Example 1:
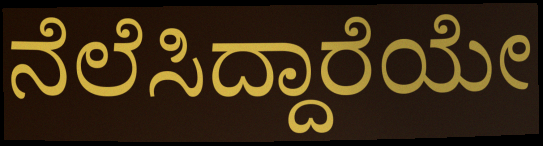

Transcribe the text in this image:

ನೆಲೆಸಿದ್ದಾರೆಯೇ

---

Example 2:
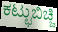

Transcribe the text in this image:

ಕಟ್ಟುಬಿಚ್ಚಿ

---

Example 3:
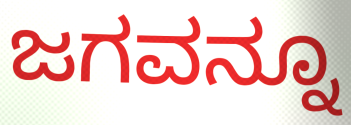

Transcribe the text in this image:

ಜಗವನ್ನೂ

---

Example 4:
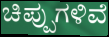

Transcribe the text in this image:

ಚಿಪ್ಪುಗಳಿವೆ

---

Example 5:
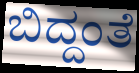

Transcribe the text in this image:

ಬಿದ್ದಂತೆ